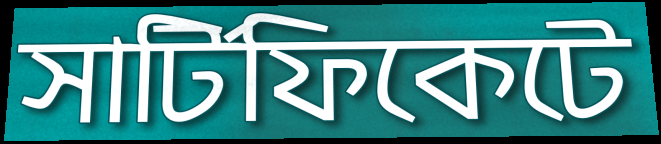
সার্টিফিকেটে